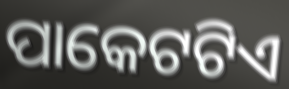
ପାକେଟଟିଏ